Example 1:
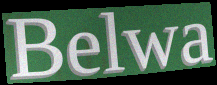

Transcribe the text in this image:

Belwa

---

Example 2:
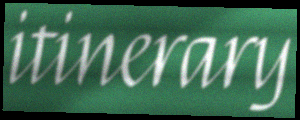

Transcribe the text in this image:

itinerary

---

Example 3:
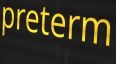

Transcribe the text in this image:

preterm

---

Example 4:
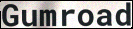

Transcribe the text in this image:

Gumroad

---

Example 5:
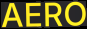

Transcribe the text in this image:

AERO